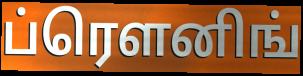
ப்ரௌனிங்